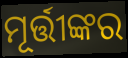
ମୂର୍ତ୍ତୀଙ୍କର